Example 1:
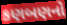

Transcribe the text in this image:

કણબણનો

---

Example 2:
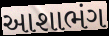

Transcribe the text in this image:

આશાભંગ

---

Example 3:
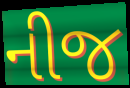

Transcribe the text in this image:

નીજ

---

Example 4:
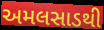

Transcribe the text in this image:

અમલસાડથી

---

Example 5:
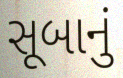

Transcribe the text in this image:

સૂબાનું